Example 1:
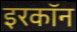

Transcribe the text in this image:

इरकॉन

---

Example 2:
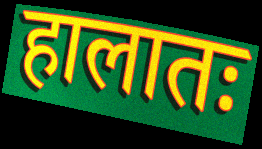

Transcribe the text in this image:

हालातः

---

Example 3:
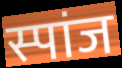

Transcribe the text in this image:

स्पांज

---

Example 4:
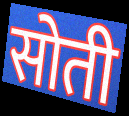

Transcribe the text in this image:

सोती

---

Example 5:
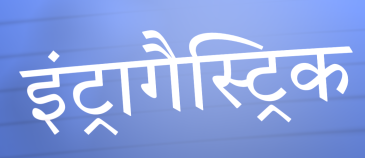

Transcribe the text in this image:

इंट्रागैस्ट्रिक